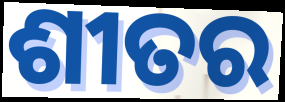
ଶୀତର